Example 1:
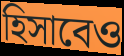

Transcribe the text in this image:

হিসাবেও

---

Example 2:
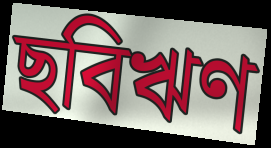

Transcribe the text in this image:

ছবিঋণ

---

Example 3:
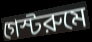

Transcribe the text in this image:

গেস্টরুমে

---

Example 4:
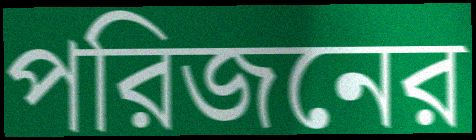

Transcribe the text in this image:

পরিজনের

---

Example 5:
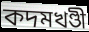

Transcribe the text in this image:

কদমখণ্ডী